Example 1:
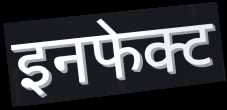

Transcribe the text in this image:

इनफेक्ट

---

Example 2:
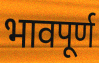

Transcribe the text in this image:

भावपूर्ण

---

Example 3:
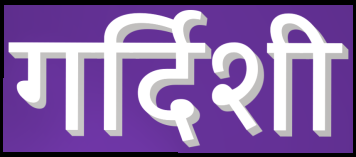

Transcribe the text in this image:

गर्दिशी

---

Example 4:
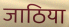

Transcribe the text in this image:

जाठिया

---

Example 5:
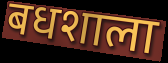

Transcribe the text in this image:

बधशाला